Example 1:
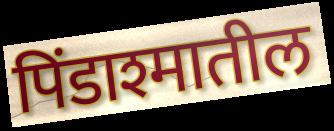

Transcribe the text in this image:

पिंडाश्मातील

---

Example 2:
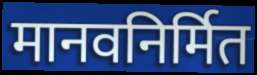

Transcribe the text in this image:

मानवनिर्मित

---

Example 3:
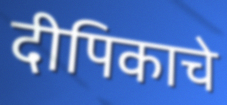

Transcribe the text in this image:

दीपिकाचे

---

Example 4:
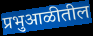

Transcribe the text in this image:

प्रभुआळीतील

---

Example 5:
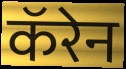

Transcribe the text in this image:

कॅरेन